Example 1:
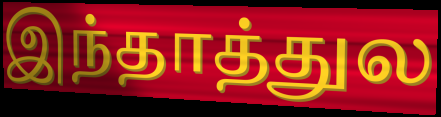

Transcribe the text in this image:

இந்தாத்துல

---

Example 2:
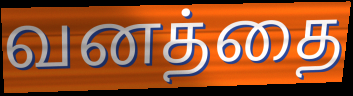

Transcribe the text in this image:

வனத்தை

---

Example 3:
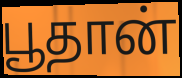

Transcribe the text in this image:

பூதான்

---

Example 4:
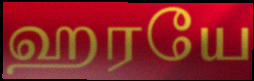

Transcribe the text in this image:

ஹரயே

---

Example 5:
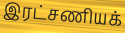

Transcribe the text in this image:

இரட்சணியக்